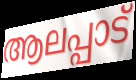
ആലപ്പാട്